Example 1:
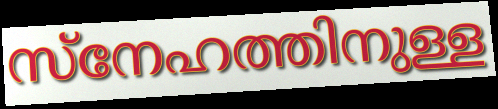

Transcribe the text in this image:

സ്നേഹത്തിനുള്ള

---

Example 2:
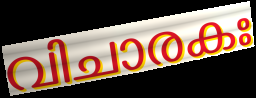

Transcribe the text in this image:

വിചാരകഃ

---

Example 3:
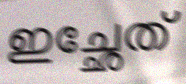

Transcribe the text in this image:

ഇച്ഛേത്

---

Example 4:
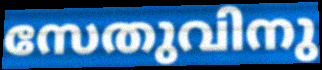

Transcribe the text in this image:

സേതുവിനു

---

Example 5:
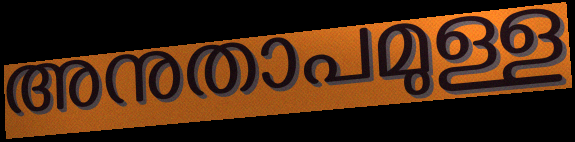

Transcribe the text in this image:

അനുതാപമുള്ള